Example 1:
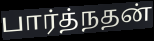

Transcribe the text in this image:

பார்த்நதன்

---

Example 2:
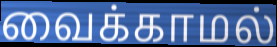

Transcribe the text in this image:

வைக்காமல்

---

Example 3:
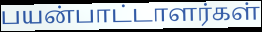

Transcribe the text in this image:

பயன்பாட்டாளர்கள்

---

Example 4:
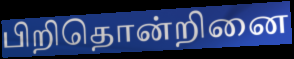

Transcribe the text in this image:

பிறிதொன்றினை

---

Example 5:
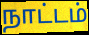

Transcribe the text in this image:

நாட்டம்